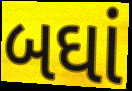
બઘાં